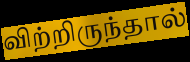
விற்றிருந்தால்